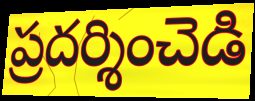
ప్రదర్శించెడి